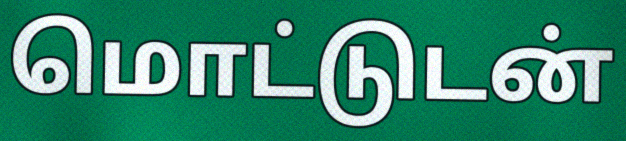
மொட்டுடன்